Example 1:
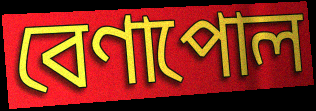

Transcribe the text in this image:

বেণাপোল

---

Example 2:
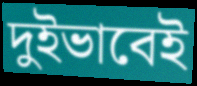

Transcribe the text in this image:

দুইভাবেই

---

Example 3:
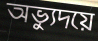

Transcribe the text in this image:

অভ্যুদয়ে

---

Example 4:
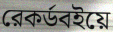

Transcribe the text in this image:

রেকর্ডবইয়ে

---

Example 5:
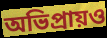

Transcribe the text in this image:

অভিপ্রায়ও